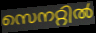
സെനറ്റിൽ